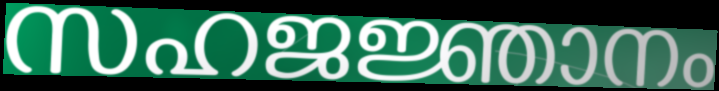
സഹജജ്ഞാനം